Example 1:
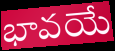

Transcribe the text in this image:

భావయే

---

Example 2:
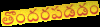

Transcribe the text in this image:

తొందరపడడం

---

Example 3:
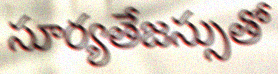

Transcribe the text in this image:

సూర్యతేజస్సుతో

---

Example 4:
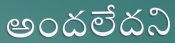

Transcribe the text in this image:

అందలేదని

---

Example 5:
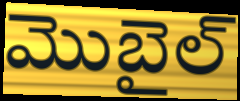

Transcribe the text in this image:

మొబైల్